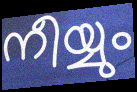
നീയ്യും